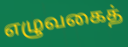
எழுவகைத்